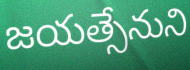
జయత్సేనుని